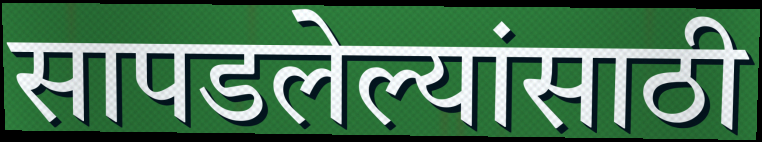
सापडलेल्यांसाठी